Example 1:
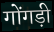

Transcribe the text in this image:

गोंगड़ी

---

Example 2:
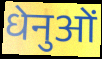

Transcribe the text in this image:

धेनुओं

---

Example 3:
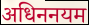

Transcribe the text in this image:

अधिननयम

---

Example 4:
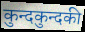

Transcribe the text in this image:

कुन्दकुन्दकी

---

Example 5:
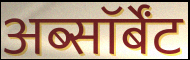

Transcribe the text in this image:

अब्सॉर्बेंट